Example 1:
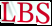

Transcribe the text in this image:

LBS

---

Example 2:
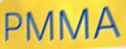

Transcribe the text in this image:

PMMA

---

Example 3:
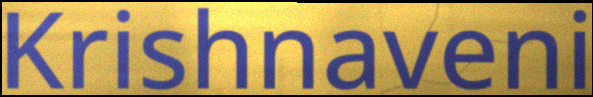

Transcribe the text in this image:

Krishnaveni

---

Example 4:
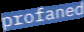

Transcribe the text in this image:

profaned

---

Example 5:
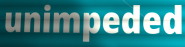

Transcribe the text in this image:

unimpeded